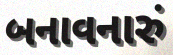
બનાવનારું